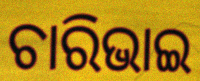
ଚାରିଭାଇ